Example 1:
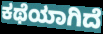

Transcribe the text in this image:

ಕಥೆಯಾಗಿದೆ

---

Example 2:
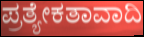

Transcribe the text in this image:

ಪ್ರತ್ಯೇಕತಾವಾದಿ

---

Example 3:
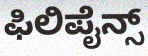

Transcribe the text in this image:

ಫಿಲಿಪೈನ್ಸ್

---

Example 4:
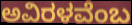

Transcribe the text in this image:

ಅವಿರಳವೆಂಬ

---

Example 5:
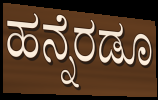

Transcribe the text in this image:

ಹನ್ನೆರಡೂ